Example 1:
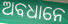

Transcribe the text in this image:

ଅବଧାନେ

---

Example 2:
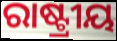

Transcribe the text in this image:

ରାଷ୍ଟ୍ରୀୟ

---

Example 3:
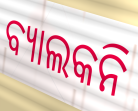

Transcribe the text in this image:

ବ୍ୟାଲକନି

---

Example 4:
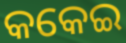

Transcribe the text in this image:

କକେଇ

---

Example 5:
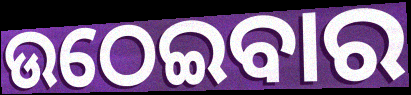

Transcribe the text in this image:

ଉଠେଇବାର